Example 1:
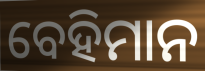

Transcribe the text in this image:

ବେହିମାନ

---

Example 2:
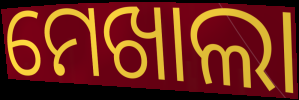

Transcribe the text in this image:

ମେଖାଲା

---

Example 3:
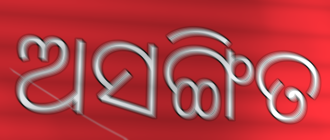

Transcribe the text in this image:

ଅସଙ୍ଗିତ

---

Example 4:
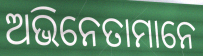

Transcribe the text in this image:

ଅଭିନେତାମାନେ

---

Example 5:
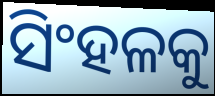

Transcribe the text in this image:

ସିଂହଳକୁ